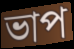
ভাপ